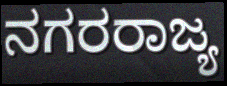
ನಗರರಾಜ್ಯ